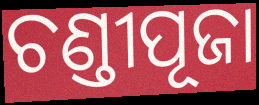
ଚଣ୍ଡୀପୂଜା